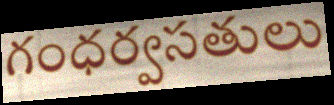
గంధర్వసతులు